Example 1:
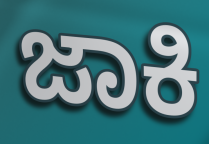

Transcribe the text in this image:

ಜಾಕಿ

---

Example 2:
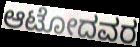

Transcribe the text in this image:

ಆಟೋದವರ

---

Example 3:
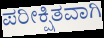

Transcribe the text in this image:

ಪರೀಕ್ಷಿತವಾಗಿ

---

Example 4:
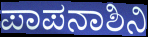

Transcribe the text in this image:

ಪಾಪನಾಶಿನಿ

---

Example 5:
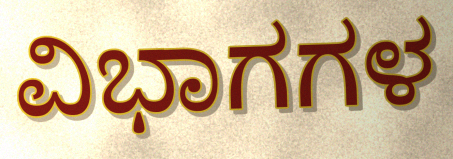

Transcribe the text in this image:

ವಿಭಾಗಗಳ